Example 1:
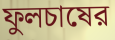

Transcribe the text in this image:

ফুলচাষের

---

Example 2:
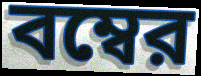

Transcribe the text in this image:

বম্বের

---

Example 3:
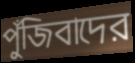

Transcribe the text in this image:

পুঁজিবাদের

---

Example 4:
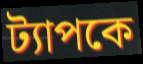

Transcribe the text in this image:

ট্যাপকে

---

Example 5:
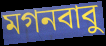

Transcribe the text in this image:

মগনবাবু